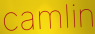
camlin